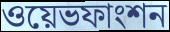
ওয়েভফাংশন